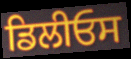
ਡਿਲੀਓਸ